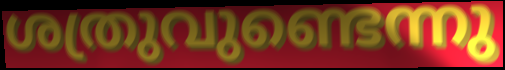
ശത്രുവുണ്ടെന്നു